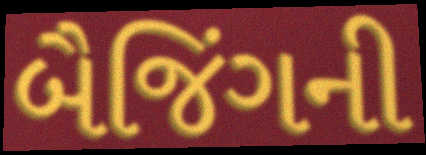
બૈજિંગની